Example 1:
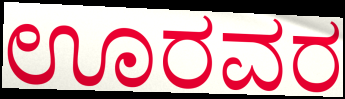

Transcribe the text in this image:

ಊರವರ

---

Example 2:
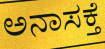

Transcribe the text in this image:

ಅನಾಸಕ್ತೆ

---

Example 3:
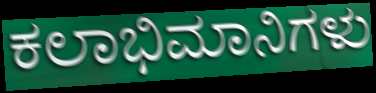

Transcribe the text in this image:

ಕಲಾಭಿಮಾನಿಗಳು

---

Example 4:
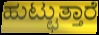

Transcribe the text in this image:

ಹುಟ್ಟುತ್ತಾರೆ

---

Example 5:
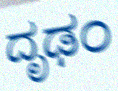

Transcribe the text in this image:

ದೃಢಂ